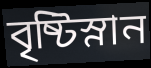
বৃষ্টিস্নান